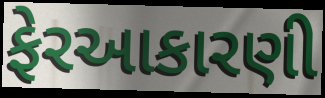
ફેરઆકારણી